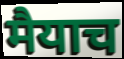
मैयाच